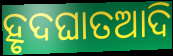
ହୃଦଘାତଆଦି